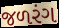
જળરંગ